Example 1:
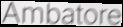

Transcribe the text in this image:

Ambatore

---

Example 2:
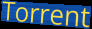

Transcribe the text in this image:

Torrent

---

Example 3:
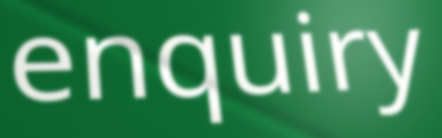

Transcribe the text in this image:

enquiry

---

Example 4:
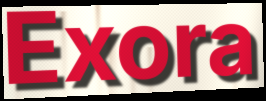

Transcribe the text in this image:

Exora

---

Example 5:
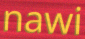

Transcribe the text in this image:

nawi